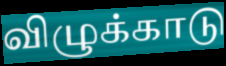
விழுக்காடு